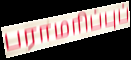
பராமரிப்புப்